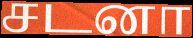
சடனா